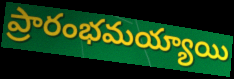
ప్రారంభమయ్యాయి